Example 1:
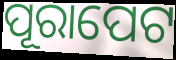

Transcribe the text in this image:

ପୂରାପେଟ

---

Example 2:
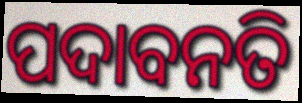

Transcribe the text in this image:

ପଦାବନତି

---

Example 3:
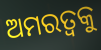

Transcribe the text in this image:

ଅମରତ୍ୱକୁ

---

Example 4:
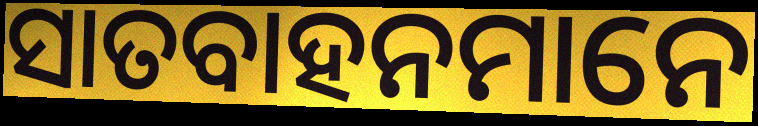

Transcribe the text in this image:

ସାତବାହନମାନେ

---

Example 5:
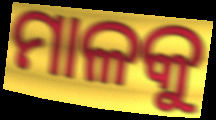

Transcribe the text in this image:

ମାଳକୁ